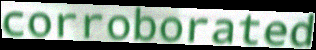
corroborated